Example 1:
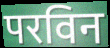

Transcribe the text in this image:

परविन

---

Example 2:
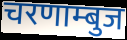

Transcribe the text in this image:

चरणाम्बुज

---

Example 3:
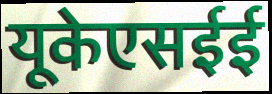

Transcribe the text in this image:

यूकेएसईई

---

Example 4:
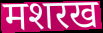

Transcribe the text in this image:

मशरख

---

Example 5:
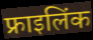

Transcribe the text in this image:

फ्राइलिंक